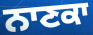
ਨਾਣਕਾ